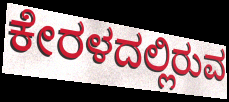
ಕೇರಳದಲ್ಲಿರುವ